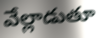
వేల్లాడుతూ